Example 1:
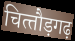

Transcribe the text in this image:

चित्‍तौड़गढ़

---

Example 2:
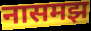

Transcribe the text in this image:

नासमझ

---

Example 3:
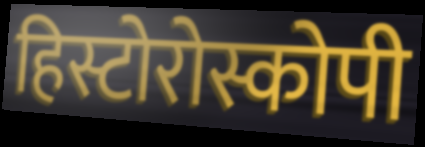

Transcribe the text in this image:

हिस्टोरोस्कोपी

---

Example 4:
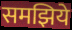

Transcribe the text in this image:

समझिये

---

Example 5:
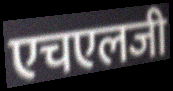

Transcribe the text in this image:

एचएलजी